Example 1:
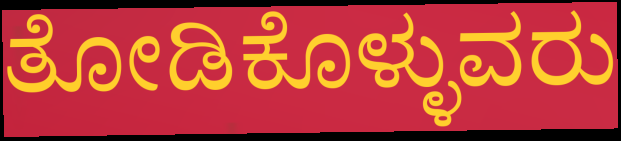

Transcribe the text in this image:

ತೋಡಿಕೊಳ್ಳುವರು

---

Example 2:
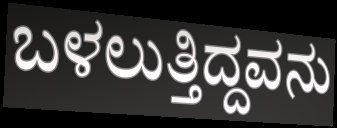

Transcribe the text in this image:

ಬಳಲುತ್ತಿದ್ದವನು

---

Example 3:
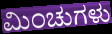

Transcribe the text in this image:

ಮಿಂಚುಗಳು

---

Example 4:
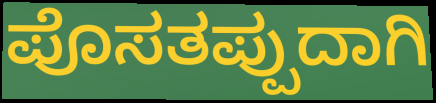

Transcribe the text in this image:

ಪೊಸತಪ್ಪುದಾಗಿ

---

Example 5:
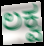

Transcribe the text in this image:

ಲಕ್ವ